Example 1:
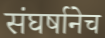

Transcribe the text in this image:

संघर्षानेच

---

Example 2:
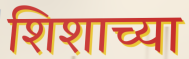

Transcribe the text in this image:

शिशाच्या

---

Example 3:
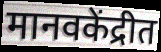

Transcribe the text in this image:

मानवकेंद्रीत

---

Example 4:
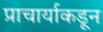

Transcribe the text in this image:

प्राचार्याकडून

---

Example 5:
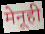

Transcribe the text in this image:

मेनूही